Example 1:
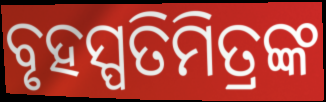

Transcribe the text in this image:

ବୃହସ୍ପତିମିତ୍ରଙ୍କ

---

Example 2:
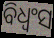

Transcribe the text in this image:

ବିଧ୍ଵଂସ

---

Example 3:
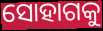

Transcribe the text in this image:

ସୋହାଗକୁ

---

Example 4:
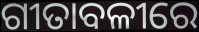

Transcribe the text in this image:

ଗୀତାବଳୀରେ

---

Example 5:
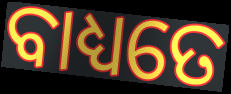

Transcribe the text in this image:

ବାଧ୍ଯତେ